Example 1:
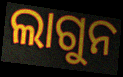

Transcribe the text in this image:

ଲାଗୁନ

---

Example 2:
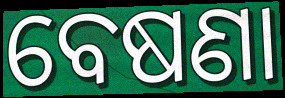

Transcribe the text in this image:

ବେଷଣା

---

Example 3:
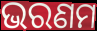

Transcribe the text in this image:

ଭରଣମ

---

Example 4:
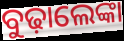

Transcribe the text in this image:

ବୁଢ଼ାଲେଙ୍କା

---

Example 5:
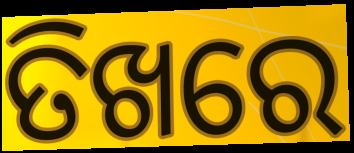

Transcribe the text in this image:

ତିଖରେ